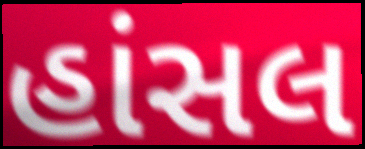
હાંસલ